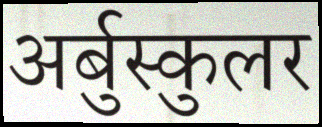
अर्बुस्कुलर